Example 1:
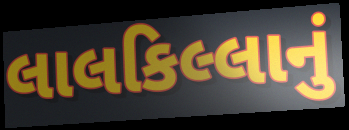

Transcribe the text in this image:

લાલકિલ્લાનું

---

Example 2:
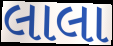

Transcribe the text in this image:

લાલા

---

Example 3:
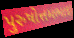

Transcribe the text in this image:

પુરુષોત્તમભાઇ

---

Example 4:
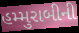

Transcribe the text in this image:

હમ્મુરાબીની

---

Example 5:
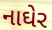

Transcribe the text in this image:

નાઘેર